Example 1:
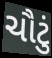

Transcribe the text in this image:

ચૌટું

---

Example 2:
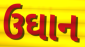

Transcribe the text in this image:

ઉઘાન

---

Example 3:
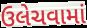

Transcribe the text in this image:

ઉલેચવામાં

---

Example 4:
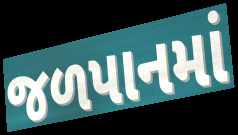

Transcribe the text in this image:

જળપાનમાં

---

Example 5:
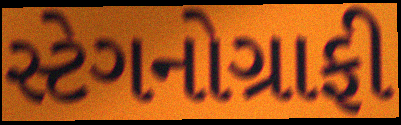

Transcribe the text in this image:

સ્ટેગનોગ્રાફી